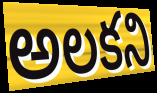
అలకని